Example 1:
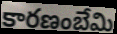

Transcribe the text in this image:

కారణంబేమి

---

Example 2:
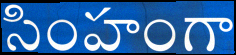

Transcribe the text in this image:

సింహంగా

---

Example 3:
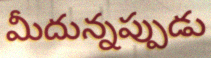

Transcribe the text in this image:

మీదున్నప్పుడు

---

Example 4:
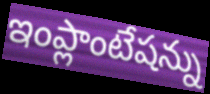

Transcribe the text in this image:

ఇంప్లాంటేషన్ను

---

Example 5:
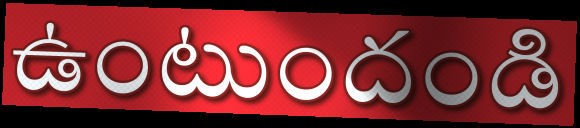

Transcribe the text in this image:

ఉంటుందండి